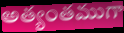
అత్యంతముగా